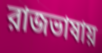
রাজভাষায়